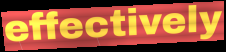
effectively